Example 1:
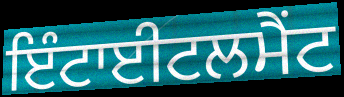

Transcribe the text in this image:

ਇੰਟਾਈਟਲਮੈਂਟ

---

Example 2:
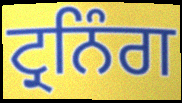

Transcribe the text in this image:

ਟ੍ਰਨਿੰਗ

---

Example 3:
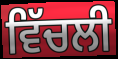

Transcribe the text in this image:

ਵਿੱਚਲੀ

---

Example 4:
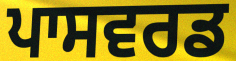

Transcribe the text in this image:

ਪਾਸਵਰਡ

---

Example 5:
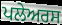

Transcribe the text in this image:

ਪਲੇਅਰਸ